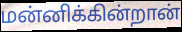
மன்னிக்கின்றான்